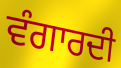
ਵੰਗਾਰਦੀ